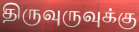
திருவுருவுக்கு